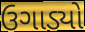
ઉગાડ્યો